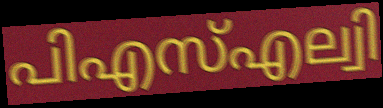
പിഎസ്എല്വി